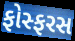
ફોસ્ફરસ